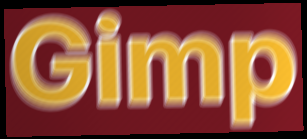
Gimp